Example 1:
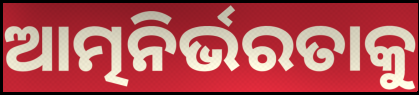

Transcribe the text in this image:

ଆତ୍ମନିର୍ଭରତାକୁ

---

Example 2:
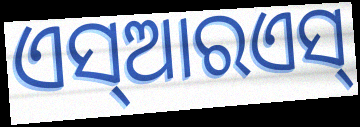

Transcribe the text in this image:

ଏସ୍ଆରଏସ୍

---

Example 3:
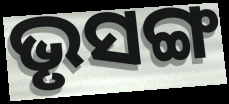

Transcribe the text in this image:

ଭୃସଙ୍ଗ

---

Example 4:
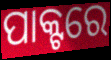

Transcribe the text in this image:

ପାକ୍ଟରେ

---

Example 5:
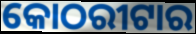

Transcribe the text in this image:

କୋଠରୀଟାର